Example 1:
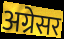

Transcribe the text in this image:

अग्रेसर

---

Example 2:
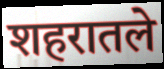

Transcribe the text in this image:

शहरातले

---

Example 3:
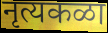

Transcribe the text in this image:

नृत्यकळा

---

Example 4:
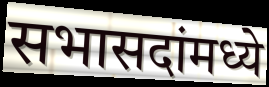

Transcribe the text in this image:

सभासदांमध्ये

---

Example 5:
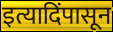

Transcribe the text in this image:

इत्यादिंपासून